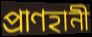
প্রাণহানী